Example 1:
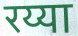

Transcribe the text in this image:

रय्या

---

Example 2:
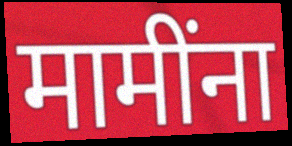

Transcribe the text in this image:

मामींना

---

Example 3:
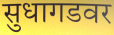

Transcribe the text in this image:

सुधागडवर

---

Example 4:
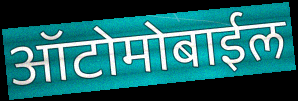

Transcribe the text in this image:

ऑटोमोबाईल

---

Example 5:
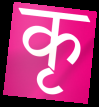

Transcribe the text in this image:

कृ